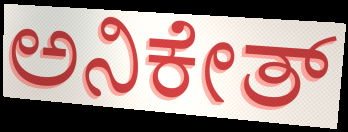
ಅನಿಕೇತ್